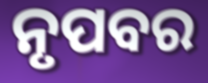
ନୃପବର